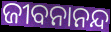
ଜୀବନାନନ୍ଦ